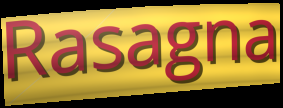
Rasagna